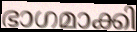
ഭാഗമാക്കി